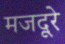
मजदूरे